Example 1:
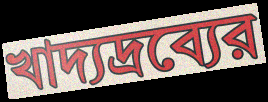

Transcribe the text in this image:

খাদ্যদ্রব্যের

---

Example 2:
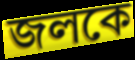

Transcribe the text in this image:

জলকে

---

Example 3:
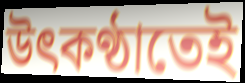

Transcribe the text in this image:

উৎকণ্ঠাতেই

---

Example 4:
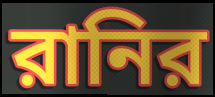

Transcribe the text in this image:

রানির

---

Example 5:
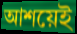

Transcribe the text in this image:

আশয়েই